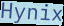
Hynix